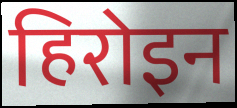
हिरोइन